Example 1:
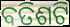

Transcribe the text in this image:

ବତିଶଟି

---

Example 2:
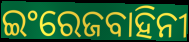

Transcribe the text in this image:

ଇଂରେଜବାହିନୀ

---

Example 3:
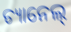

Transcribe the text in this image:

ଚ୍ୟାନେଲ୍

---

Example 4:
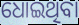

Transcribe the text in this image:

ଧୋଇଥିବା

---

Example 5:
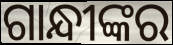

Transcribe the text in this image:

ଗାନ୍ଧୀଙ୍କର